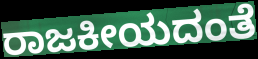
ರಾಜಕೀಯದಂತೆ